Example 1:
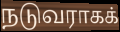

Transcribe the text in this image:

நடுவராகக்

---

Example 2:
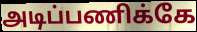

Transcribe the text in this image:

அடிப்பணிக்கே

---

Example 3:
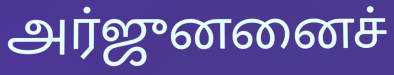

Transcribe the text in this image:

அர்ஜுனனைச்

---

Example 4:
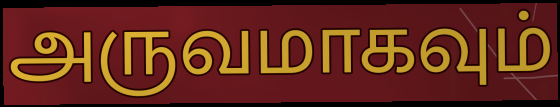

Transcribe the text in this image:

அருவமாகவும்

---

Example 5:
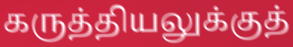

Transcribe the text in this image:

கருத்தியலுக்குத்